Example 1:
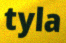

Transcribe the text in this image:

tyla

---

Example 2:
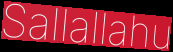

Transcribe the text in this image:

Sallallahu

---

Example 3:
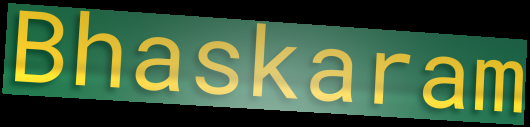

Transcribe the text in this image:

Bhaskaram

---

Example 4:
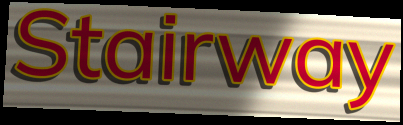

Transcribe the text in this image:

Stairway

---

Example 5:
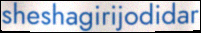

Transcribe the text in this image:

sheshagirijodidar